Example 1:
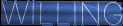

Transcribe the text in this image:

WILLING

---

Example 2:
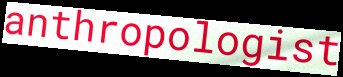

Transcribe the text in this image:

anthropologist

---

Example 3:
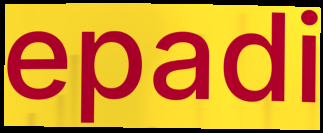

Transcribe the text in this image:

epadi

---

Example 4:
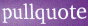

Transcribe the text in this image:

pullquote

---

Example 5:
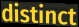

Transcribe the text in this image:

distinct